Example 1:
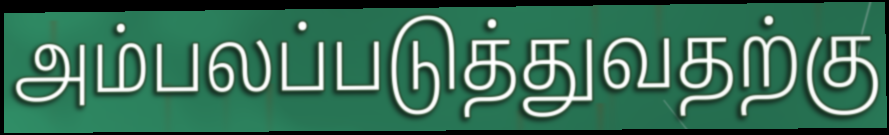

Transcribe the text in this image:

அம்பலப்படுத்துவதற்கு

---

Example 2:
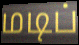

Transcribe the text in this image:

மடிப்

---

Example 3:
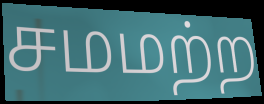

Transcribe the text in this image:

சமமற்ற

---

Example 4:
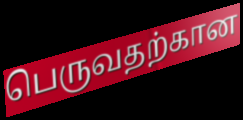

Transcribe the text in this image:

பெருவதற்கான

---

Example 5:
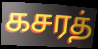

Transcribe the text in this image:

கசரத்